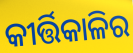
କୀର୍ତ୍ତିକାଳିର